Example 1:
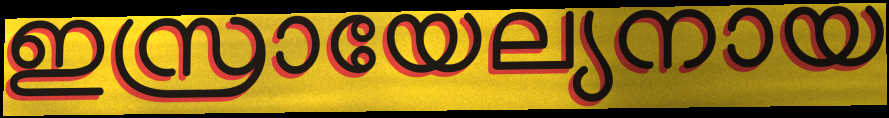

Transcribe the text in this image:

ഇസ്രായേല്യനായ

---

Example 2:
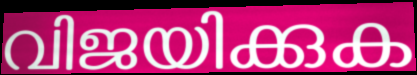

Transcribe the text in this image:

വിജയിക്കുക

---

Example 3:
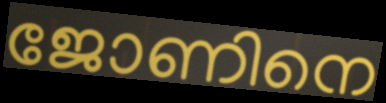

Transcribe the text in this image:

ജോണിനെ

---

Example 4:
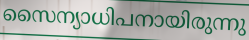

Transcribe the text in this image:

സൈന്യാധിപനായിരുന്നു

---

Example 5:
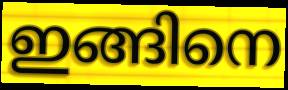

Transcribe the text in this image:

ഇങ്ങിനെ